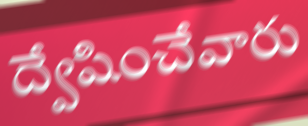
ద్వేషించేవారు